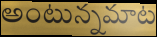
అంటున్నమాట